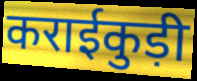
कराईकुड़ी